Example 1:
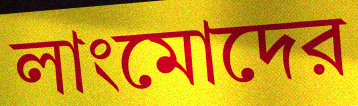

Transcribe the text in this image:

লাংমোদের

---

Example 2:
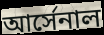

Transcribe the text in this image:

আর্সেনাল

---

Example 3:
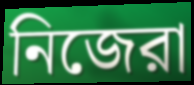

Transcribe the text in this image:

নিজেরা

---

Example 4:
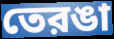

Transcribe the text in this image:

তেরঙা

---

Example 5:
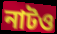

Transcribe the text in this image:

নাটও